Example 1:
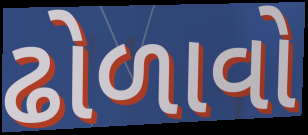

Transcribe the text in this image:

ઢોળાવો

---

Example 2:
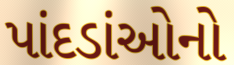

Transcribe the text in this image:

પાંદડાંઓનો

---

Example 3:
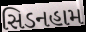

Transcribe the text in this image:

સિડનહામ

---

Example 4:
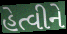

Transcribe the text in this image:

હેત્વીને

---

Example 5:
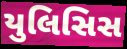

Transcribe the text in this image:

યુલિસિસ